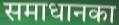
समाधानका